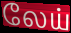
லேய்